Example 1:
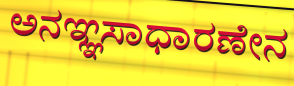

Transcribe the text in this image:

ಅನಞ್ಞಸಾಧಾರಣೇನ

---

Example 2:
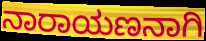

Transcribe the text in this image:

ನಾರಾಯಣನಾಗಿ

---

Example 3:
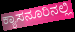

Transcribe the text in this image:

ಕ್ಯಾಸನೂರಿನಲ್ಲಿ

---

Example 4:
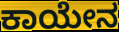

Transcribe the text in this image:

ಕಾಯೇನ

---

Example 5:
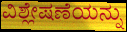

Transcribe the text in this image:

ವಿಶ್ಲೇಷಣೆಯನ್ನು